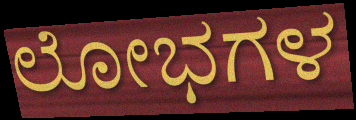
ಲೋಭಗಳ